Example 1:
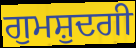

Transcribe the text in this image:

ਗੁਮਸ਼ੁਦਗੀ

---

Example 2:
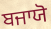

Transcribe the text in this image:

ਬਜਾਯੋ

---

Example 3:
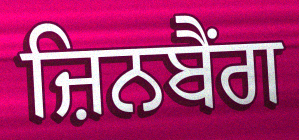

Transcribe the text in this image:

ਜ਼ਿਨਬੈਂਗ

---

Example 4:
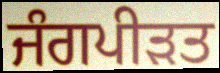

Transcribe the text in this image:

ਜੰਗਪੀੜਤ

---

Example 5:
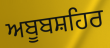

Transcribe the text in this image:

ਅਬੂਬਸ਼ਹਿਰ